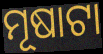
ମୂଷାଟା